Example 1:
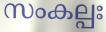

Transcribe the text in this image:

സംകല്പഃ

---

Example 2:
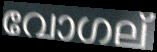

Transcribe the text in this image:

വോഗല്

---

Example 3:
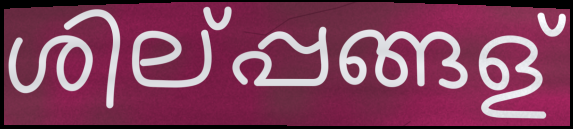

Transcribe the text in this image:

ശില്പ്പങ്ങള്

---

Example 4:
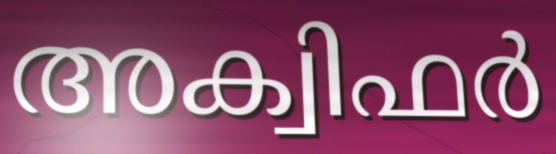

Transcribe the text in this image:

അക്വിഫർ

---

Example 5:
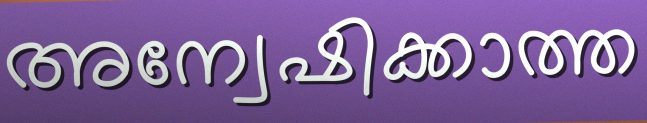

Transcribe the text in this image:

അന്വേഷിക്കാത്ത